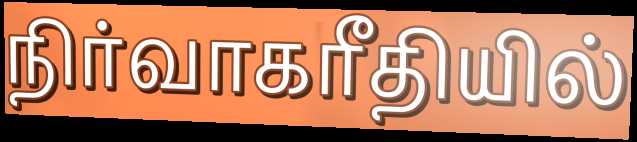
நிர்வாகரீதியில்